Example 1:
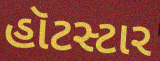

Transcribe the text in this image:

હૉટસ્ટાર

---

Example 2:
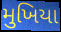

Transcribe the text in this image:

મુખિયા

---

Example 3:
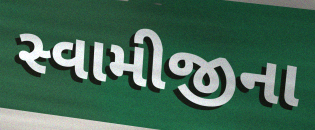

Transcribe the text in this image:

સ્વામીજીના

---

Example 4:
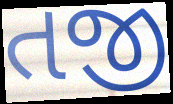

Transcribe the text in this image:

તજી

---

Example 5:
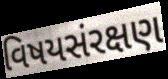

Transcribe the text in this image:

વિષયસંરક્ષણ